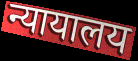
न्यायालय